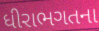
ધીરાભગતના